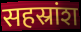
सहस्रांश